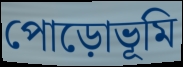
পোড়োভূমি